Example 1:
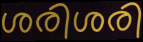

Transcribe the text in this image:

ശരിശരി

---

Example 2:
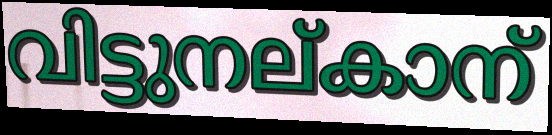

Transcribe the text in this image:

വിട്ടുനല്കാന്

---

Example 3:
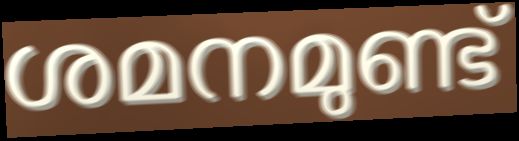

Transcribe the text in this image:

ശമനമുണ്ട്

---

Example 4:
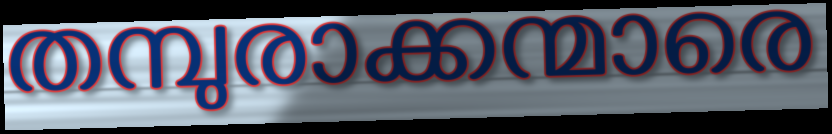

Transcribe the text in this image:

തമ്പുരാക്കന്മാരെ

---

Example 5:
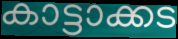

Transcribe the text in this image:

കാട്ടാക്കട